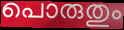
പൊരുതും